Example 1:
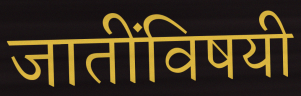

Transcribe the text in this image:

जातींविषयी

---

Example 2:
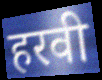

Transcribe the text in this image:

हरवी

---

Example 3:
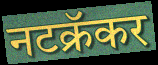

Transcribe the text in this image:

नटक्रॅकर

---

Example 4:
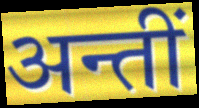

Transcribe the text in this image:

अन्तीं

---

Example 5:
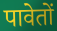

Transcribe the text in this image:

पावेतों